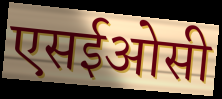
एसईओसी